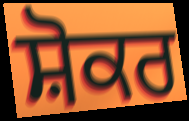
ਸ਼ੋਕਰ